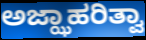
ಅಜ್ಝಾಹರಿತ್ವಾ